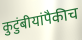
कुटुंबीयांपैकीच